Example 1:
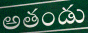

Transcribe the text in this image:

అతండు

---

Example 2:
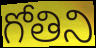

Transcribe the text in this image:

గోతిని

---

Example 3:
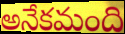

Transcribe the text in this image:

అనేకమంది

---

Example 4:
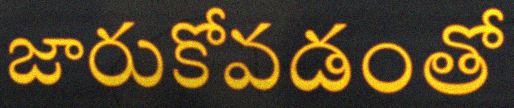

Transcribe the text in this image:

జారుకోవడంతో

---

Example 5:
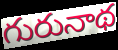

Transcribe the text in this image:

గురునాథ